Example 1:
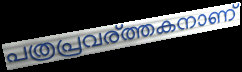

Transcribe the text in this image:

പത്രപ്രവര്ത്തകനാണ്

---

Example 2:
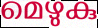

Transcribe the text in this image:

മെഴുകു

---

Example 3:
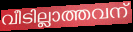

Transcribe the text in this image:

വീടില്ലാത്തവന്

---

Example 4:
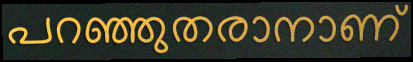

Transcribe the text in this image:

പറഞ്ഞുതരാനാണ്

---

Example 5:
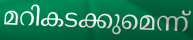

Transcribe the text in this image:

മറികടക്കുമെന്ന്